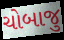
ચોબાજુ